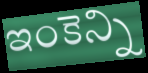
ఇంకెన్ని